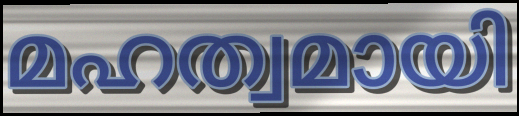
മഹത്വമായി